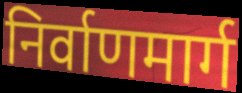
निर्वाणमार्ग